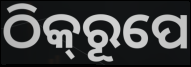
ଠିକ୍‍ରୂପେ